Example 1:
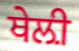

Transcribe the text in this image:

ਥੇਲ਼ੀ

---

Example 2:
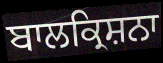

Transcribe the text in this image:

ਬਾਲਕ੍ਰਿਸ਼ਨਾ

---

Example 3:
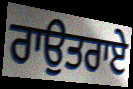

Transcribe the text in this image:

ਰਾਉਤਰਾਏ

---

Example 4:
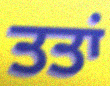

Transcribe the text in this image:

ਤਤਾਂ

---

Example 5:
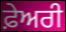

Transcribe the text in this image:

ਫ਼ੇਅਰੀ